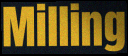
Milling